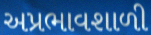
અપ્રભાવશાળી